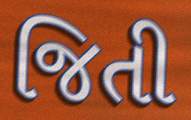
જિતી